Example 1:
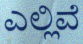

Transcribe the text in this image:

ಎಲ್ಲಿವೆ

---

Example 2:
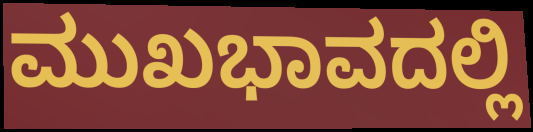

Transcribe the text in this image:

ಮುಖಭಾವದಲ್ಲಿ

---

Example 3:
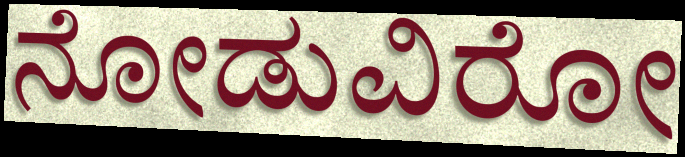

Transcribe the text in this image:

ನೋಡುವಿರೋ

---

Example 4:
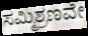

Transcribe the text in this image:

ಸಮ್ಮಿಶ್ರಣವೇ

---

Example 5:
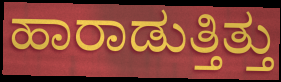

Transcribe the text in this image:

ಹಾರಾಡುತ್ತಿತ್ತು